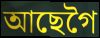
আছেগৈ